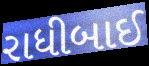
રાધીબાઈ